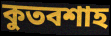
কুতবশাহ